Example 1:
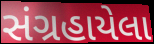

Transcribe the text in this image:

સંગ્રહાયેલા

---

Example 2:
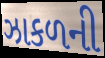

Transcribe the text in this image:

ઝાકળની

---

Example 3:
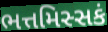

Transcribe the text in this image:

ભત્તમિસ્સકં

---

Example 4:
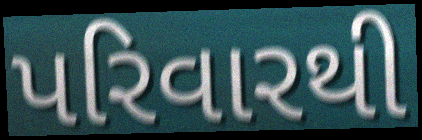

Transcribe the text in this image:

પરિવારથી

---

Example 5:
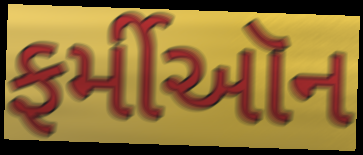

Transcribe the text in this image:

ફર્મીઑન